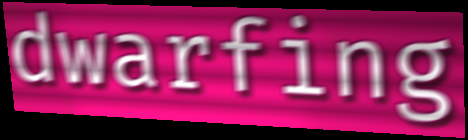
dwarfing